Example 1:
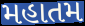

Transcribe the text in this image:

મહાતમ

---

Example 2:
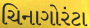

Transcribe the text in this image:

ચિનાગોરંટા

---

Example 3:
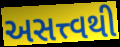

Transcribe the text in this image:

અસત્ત્વથી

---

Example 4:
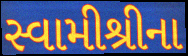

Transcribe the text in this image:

સ્વામીશ્રીના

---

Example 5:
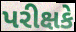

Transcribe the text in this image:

પરીક્ષકે